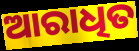
ଆରାଧିତ